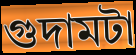
গুদামটা